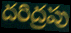
దరిద్రపు